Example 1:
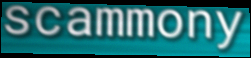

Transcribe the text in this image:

scammony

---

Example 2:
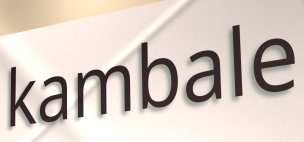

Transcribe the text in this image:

kambale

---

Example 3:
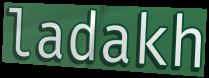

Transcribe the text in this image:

ladakh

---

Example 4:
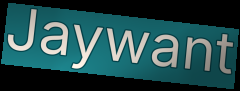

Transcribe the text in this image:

Jaywant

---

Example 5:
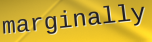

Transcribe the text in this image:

marginally